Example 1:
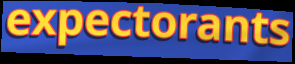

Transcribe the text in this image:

expectorants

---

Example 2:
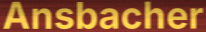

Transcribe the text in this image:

Ansbacher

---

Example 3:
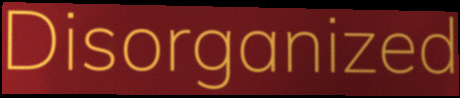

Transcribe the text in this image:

Disorganized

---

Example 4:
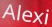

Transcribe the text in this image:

Alexi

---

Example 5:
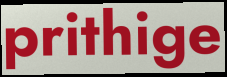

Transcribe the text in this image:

prithige